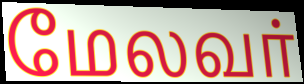
மேலவர்